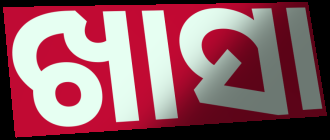
ଖାସା